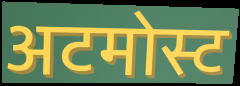
अटमोस्ट